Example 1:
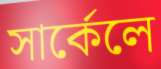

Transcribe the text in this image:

সার্কেলে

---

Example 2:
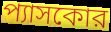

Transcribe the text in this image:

প্যাসকোর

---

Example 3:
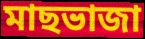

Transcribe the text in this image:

মাছভাজা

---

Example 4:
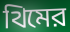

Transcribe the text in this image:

থিমের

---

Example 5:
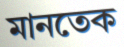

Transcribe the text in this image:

মানতেক